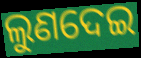
ଲୁଣଦେଇ